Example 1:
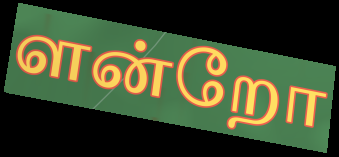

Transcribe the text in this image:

ளன்றோ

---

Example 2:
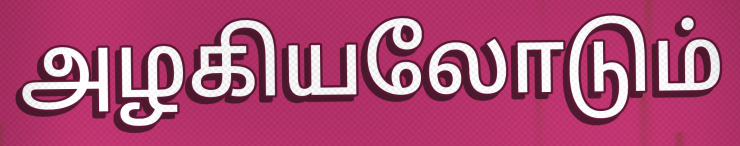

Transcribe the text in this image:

அழகியலோடும்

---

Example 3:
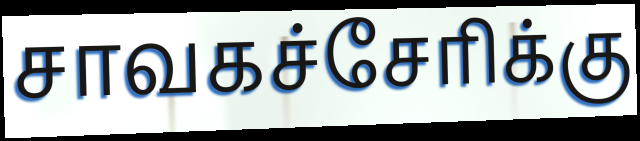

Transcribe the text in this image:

சாவகச்சேரிக்கு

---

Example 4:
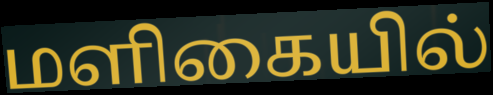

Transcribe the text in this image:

மளிகையில்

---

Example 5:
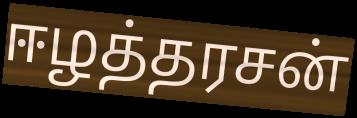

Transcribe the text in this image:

ஈழத்தரசன்